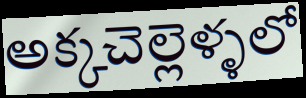
అక్కచెల్లెళ్ళలో